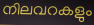
നിലവറകളും